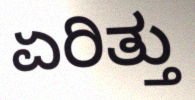
ಏರಿತ್ತು